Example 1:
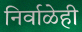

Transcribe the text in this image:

निर्वाळेही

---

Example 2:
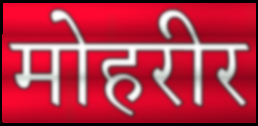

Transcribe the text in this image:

मोहरीर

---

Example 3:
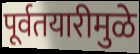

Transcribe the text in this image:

पूर्वतयारीमुळे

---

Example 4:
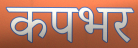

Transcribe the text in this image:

कपभर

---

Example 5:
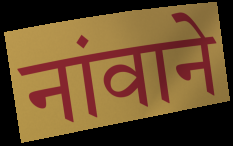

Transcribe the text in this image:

नांवाने